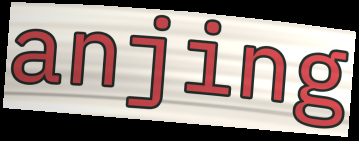
anjing